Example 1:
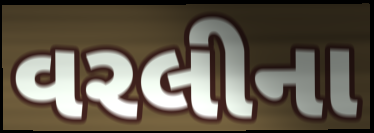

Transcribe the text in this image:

વરલીના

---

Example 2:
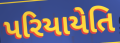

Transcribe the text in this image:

પરિયાયેતિ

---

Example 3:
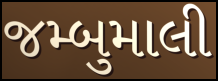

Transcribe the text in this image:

જમ્બુમાલી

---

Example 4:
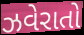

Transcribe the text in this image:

ઝવેરાતો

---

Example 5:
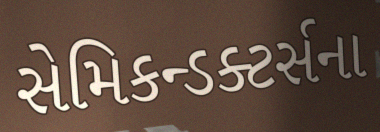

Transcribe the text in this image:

સેમિકન્ડક્ટર્સના